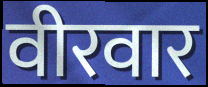
वीरवार